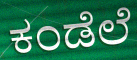
ಕಂಡೆಲೆ